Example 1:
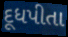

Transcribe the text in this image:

દૂધપીતા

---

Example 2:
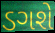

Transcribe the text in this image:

ડગશે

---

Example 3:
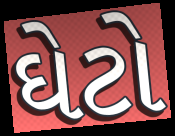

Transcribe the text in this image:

ઘેટો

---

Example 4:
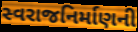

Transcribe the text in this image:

સ્વરાજનિર્માણની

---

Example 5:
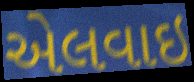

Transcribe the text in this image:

એલવાઇ